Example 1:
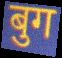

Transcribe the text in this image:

बुग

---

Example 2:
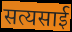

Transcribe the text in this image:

सत्यसाई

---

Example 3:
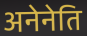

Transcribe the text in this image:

अनेनेति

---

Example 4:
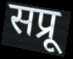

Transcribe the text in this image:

सप्रू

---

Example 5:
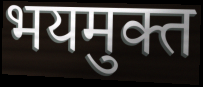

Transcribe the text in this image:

भयमुक्‍त